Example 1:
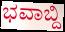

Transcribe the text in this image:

ಭವಾಬ್ದಿ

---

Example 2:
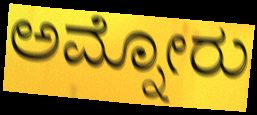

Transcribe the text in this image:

ಅಮ್ನೋರು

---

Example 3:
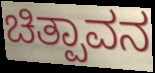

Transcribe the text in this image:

ಚಿತ್ಪಾವನ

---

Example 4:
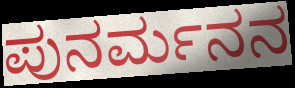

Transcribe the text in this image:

ಪುನರ್ಮನನ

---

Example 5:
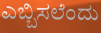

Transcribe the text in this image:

ಎಬ್ಬಿಸಲೆಂದು